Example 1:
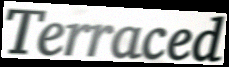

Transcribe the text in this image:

Terraced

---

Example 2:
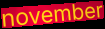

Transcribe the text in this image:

november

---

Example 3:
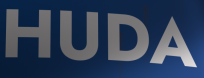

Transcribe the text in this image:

HUDA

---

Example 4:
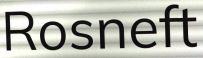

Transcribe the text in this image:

Rosneft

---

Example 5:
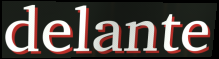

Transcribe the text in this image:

delante